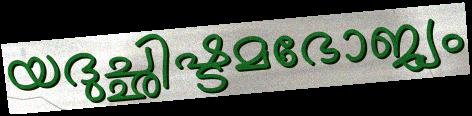
യദുച്ഛിഷ്ടമഭോജ്യം